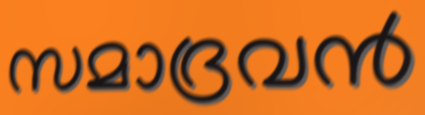
സമാദ്രവൻ